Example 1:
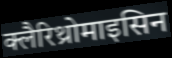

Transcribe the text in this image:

क्लैरिथ्रोमाइसिन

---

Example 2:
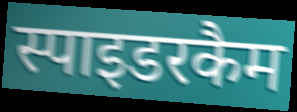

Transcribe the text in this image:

स्पाइडरकैम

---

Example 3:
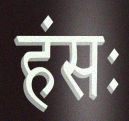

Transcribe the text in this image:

हंसः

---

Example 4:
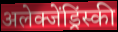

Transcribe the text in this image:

अलेक्जेंड्रिंस्की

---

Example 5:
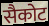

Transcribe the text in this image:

सैकोट